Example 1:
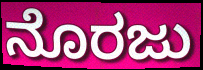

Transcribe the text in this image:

ನೊರಜು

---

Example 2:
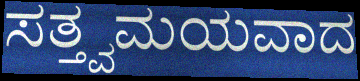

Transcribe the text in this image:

ಸತ್ತ್ವಮಯವಾದ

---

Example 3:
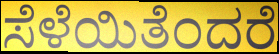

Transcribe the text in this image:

ಸೆಳೆಯಿತೆಂದರೆ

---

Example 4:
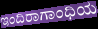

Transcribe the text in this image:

ಇಂದಿರಾಗಾಂಧಿಯ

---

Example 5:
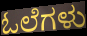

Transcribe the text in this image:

ಓಲೆಗಳು